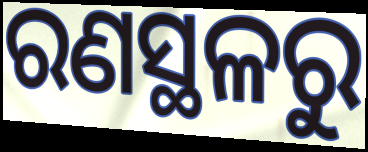
ରଣସ୍ଥଳରୁ